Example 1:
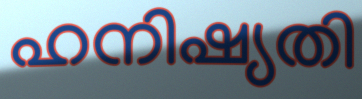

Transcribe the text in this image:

ഹനിഷ്യതി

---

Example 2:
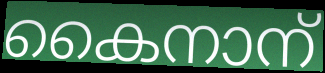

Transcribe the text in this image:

കൈനാന്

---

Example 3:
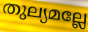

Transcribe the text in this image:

തുല്യമല്ലേ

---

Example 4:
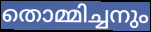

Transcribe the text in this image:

തൊമ്മിച്ചനും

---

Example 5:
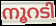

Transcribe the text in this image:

നൂറടി